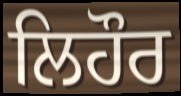
ਲਿਹੌਰ